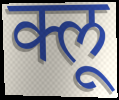
क्लू